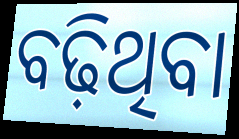
ବଢ଼ିଥିବା